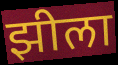
झीला